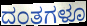
ದಂತಗಳೂ